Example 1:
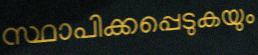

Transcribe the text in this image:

സ്ഥാപിക്കപ്പെടുകയും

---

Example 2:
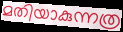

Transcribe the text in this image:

മതിയാകുന്നത്ര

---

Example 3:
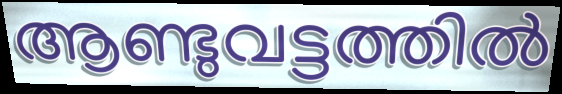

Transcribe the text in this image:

ആണ്ടുവട്ടത്തിൽ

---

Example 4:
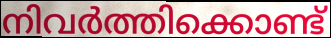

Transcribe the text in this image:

നിവർത്തിക്കൊണ്ട്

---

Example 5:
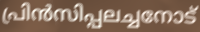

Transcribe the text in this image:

പ്രിൻസിപ്പലച്ചനോട്